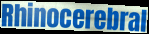
Rhinocerebral